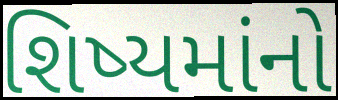
શિષ્યમાંનો